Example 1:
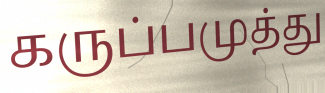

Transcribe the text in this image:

கருப்பமுத்து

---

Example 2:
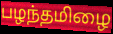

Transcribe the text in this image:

பழந்தமிழை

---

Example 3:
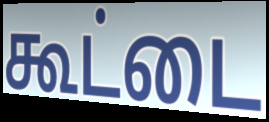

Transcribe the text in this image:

கூட்டை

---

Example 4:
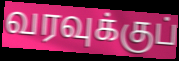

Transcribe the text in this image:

வரவுக்குப்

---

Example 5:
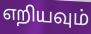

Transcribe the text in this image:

எறியவும்